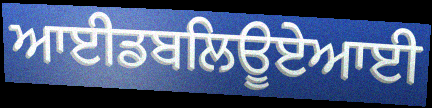
ਆਈਡਬਲਿਊਏਆਈ